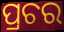
ପ୍ରଚର